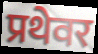
प्रथेवर